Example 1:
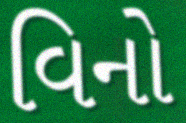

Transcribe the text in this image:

વિનો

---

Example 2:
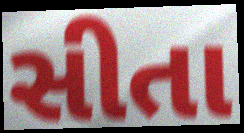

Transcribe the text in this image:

સીતા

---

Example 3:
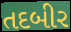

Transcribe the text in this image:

તદબીર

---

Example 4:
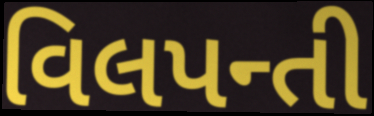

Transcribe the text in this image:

વિલપન્તી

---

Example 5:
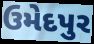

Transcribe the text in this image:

ઉમેદપુર